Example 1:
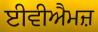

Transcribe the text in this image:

ਈਵੀਐਮਜ਼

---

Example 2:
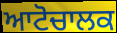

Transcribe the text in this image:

ਆਟੋਚਾਲਕ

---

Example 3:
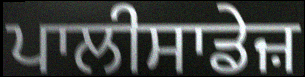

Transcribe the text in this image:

ਪਾਲੀਸਾਡੇਜ਼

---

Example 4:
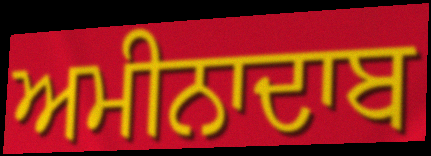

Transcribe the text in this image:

ਅਮੀਨਾਦਾਬ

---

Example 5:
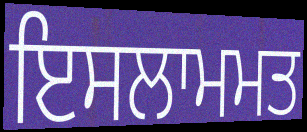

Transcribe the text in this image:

ਇਸਲਾਮਮਤ